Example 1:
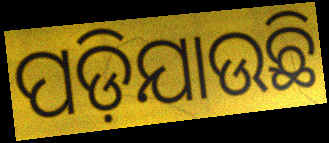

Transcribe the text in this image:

ପଡ଼ିଯାଉଛି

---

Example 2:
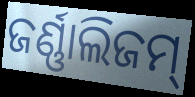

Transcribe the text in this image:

ଜର୍ଣ୍ଣାଲିଜମ୍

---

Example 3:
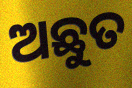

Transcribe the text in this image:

ଅଛୁତ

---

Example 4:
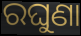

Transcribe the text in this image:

ରଘୁଣା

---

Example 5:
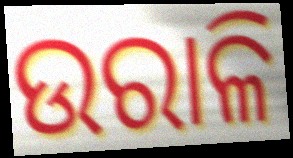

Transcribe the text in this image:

ଉରାଳି